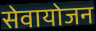
सेवायोजन